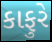
કાફુરે